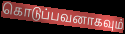
கொடுப்பவனாகவும்